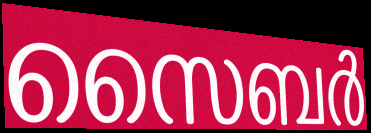
സൈബർ